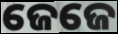
ଜେଜେ